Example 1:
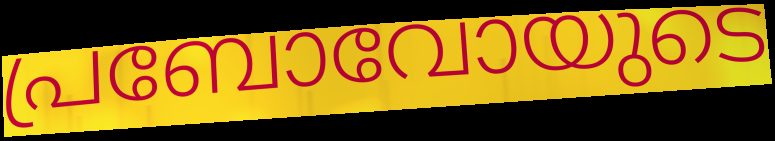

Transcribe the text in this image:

പ്രബോവോയുടെ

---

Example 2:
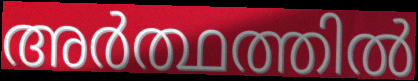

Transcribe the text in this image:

അർത്ഥത്തിൽ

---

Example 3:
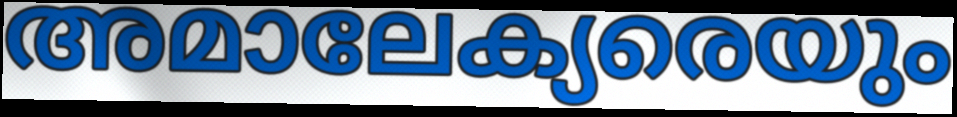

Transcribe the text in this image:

അമാലേക്യരെയും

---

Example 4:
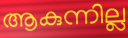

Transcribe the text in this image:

ആകുന്നില്ല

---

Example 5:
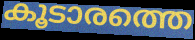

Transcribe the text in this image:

കൂടാരത്തെ